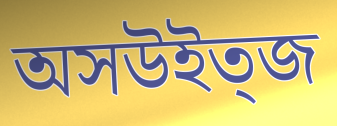
অসউইত্জ